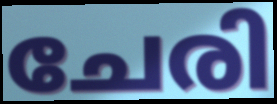
ചേരി